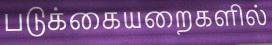
படுக்கையறைகளில்